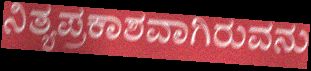
ನಿತ್ಯಪ್ರಕಾಶವಾಗಿರುವನು